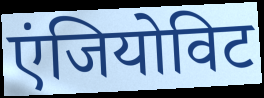
एंजियोविट